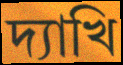
দ্যাখি